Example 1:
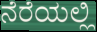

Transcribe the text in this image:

ನೆರೆಯಲ್ಲಿ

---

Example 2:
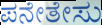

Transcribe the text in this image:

ಪನೇತೇಸು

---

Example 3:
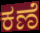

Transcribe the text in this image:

ಕಣೆ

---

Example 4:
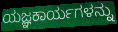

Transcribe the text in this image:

ಯಜ್ಞಕಾರ್ಯಗಳನ್ನು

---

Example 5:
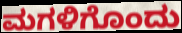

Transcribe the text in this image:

ಮಗಳಿಗೊಂದು